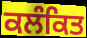
ਕਲੰਕਿਤ